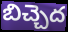
బిచ్చెద